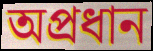
অপ্রধান